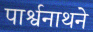
पार्श्वनाथने